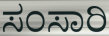
ಸಂಸಾರಿ